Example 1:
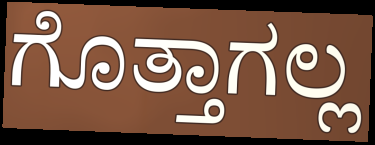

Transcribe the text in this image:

ಗೊತ್ತಾಗಲ್ಲ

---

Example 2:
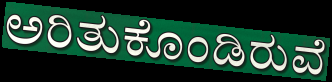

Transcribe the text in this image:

ಅರಿತುಕೊಂಡಿರುವೆ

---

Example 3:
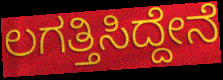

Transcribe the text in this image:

ಲಗತ್ತಿಸಿದ್ದೇನೆ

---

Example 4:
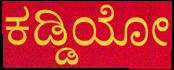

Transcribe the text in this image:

ಕಡ್ಡಿಯೋ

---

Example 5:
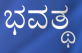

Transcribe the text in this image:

ಭವತ್ಥ